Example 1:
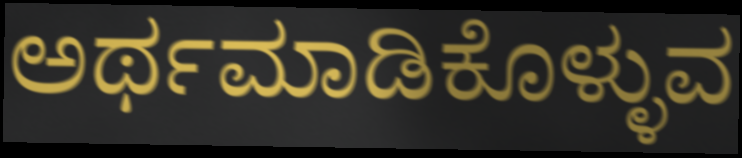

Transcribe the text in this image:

ಅರ್ಥಮಾಡಿಕೊಳ್ಳುವ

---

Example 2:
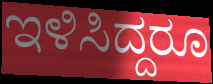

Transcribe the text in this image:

ಇಳಿಸಿದ್ದರೂ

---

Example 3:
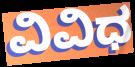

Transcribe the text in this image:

ವಿವಿಧ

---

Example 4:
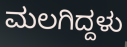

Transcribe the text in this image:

ಮಲಗಿದ್ದಳು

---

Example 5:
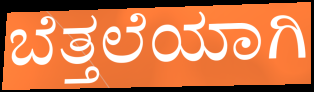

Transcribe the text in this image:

ಬೆತ್ತಲೆಯಾಗಿ